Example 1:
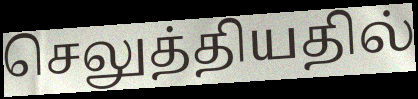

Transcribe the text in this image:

செலுத்தியதில்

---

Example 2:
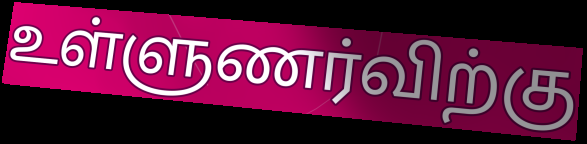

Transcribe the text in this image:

உள்ளுணர்விற்கு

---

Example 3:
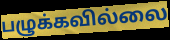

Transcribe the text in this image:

பழுக்கவில்லை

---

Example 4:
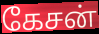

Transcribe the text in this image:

கேசன்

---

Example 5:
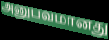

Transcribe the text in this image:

அனுபவமானது